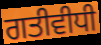
ਗਤੀਵੀਧੀ